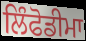
ਲਿੰਫੋਡੀਮਾ